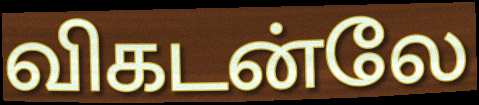
விகடன்லே